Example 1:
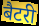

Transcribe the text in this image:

बैटरी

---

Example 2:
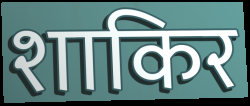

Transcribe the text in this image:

शाकिर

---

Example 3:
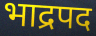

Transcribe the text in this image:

भाद्रपद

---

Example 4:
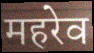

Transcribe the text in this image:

महरेव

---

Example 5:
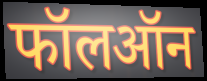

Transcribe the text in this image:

फॉलऑन